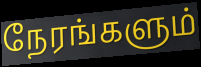
நேரங்களும்